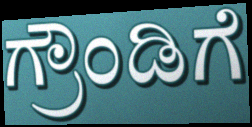
ಗ್ರೌಂಡಿಗೆ